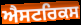
ਐਸਟਰਿਕਸ